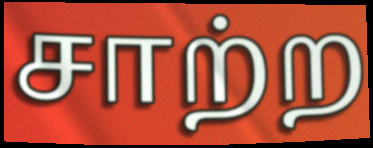
சாற்ற